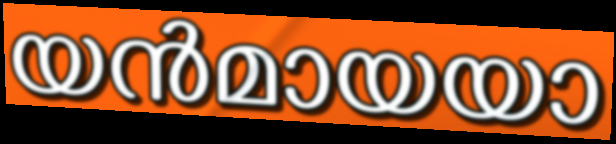
യൻമായയാ